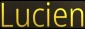
Lucien